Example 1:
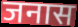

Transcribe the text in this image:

जनास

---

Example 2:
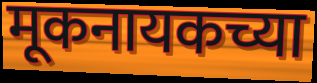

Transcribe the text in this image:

मूकनायकच्या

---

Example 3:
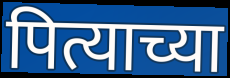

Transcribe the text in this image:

पित्याच्या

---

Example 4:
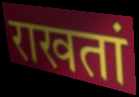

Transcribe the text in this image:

राखतां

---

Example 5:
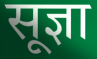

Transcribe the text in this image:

सूज्ञा